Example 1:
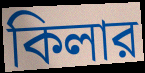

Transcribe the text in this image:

কিলার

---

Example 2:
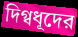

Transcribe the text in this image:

দিগ্বধূদের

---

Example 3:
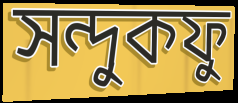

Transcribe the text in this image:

সন্দুকফু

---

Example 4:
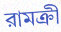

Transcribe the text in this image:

রামক্রী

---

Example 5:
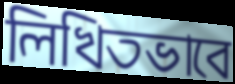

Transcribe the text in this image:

লিখিতভাবে